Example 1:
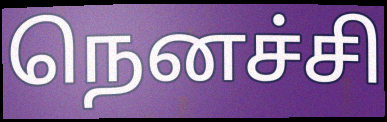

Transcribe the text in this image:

நெனச்சி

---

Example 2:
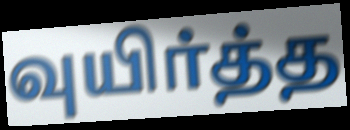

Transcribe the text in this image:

வுயிர்த்த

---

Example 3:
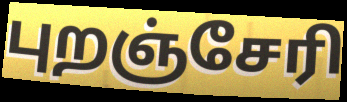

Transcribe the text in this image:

புறஞ்சேரி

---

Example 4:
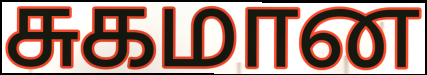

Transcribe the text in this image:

சுகமான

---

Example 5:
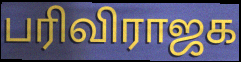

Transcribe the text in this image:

பரிவிராஜக